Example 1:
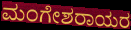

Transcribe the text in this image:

ಮಂಗೇಶರಾಯರ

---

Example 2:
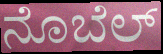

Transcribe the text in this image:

ನೊಬೆಲ್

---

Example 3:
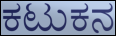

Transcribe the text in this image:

ಕಟುಕನ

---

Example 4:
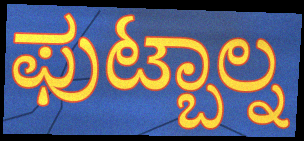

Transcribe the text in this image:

ಫುಟ್ಬಾಲ್ನ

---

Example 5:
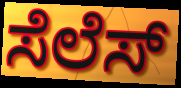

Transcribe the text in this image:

ಸೆಲೆಸ್